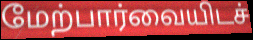
மேற்பார்வையிடச்